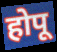
होपू